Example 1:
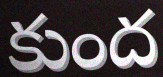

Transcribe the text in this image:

కుంద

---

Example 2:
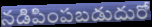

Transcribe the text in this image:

నడిపింపబడుదురో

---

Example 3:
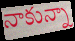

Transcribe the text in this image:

నాకున్నా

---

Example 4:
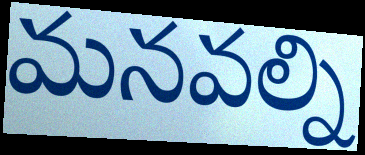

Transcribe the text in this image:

మనవల్ని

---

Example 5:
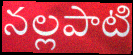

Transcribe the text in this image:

నల్లపాటి